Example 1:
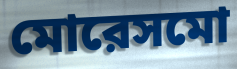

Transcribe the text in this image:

মোরেসমো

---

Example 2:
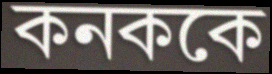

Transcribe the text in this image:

কনককে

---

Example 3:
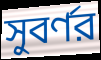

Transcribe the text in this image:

সুবর্ণর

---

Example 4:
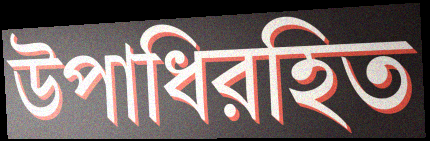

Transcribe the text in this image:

উপাধিরহিত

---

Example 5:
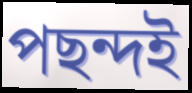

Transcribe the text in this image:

পছন্দই